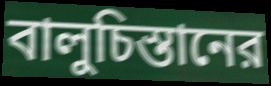
বালুচিস্তানের